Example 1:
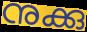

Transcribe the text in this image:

നുക്കു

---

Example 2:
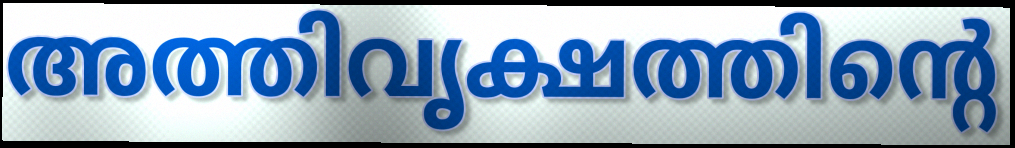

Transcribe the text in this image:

അത്തിവൃക്ഷത്തിന്റെ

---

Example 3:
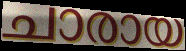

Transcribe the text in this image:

ചാരായ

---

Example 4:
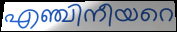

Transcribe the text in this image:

എഞ്ചിനീയറെ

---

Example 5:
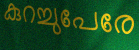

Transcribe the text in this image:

കുറച്ചുപേരേ